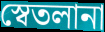
স্বেতলানা